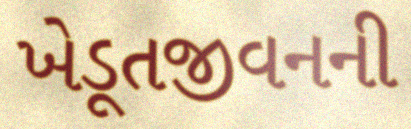
ખેડૂતજીવનની